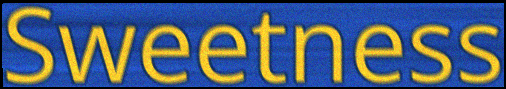
Sweetness